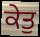
ਕੇਤੁ